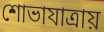
শোভাযাত্রায়